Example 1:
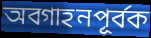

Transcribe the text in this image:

অবগাহনপূর্বক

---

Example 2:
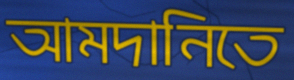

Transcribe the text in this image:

আমদানিতে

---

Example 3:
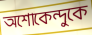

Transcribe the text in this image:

অশোকেন্দুকে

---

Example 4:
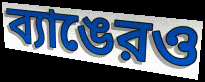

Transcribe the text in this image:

ব্যাঙেরও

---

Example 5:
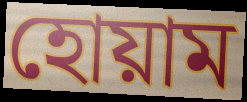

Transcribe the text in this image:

হোয়াম